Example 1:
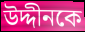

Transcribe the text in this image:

উদ্দীনকে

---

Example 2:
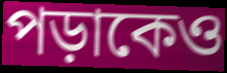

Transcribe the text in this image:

পড়াকেও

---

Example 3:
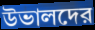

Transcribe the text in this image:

উভালদের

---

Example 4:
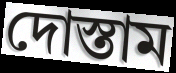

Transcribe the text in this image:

দোস্তাম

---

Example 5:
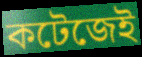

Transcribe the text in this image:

কটেজেই